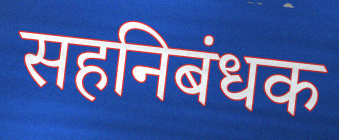
सहनिबंधक